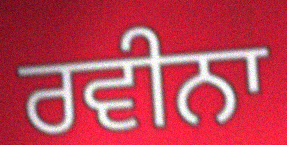
ਰਵੀਨਾ